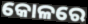
କୋଳରେ